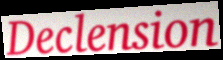
Declension